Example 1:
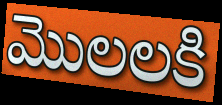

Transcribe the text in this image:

మొలలకి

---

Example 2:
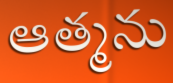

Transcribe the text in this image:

ఆత్మను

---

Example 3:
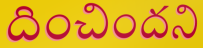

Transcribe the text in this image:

దించిందని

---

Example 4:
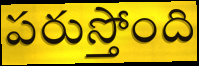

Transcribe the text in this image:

పరుస్తోంది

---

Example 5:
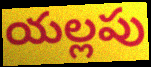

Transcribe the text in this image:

యల్లపు